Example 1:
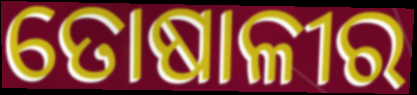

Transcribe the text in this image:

ତୋଷାଳୀର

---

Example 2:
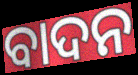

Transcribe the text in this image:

ବାଦନ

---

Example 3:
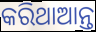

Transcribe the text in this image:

କରିଥାଆନ୍ତ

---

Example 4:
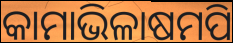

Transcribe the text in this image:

କାମାଭିଳାଷମପି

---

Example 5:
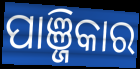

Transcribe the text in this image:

ପାଞ୍ଜିକାର